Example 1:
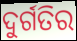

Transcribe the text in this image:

ଦୁର୍ଗତିର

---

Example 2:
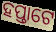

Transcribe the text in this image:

ହପ୍ତାଟେ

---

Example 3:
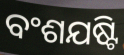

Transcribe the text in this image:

ବଂଶଯଷ୍ଟି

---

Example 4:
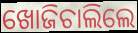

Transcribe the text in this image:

ଖୋଜିଚାଲିଲେ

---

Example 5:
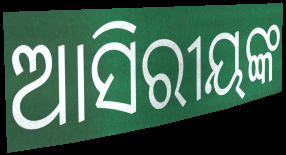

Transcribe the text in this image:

ଆସିରୀୟଙ୍କ